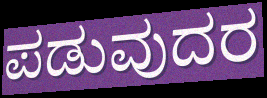
ಪಡುವುದರ